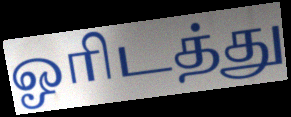
ஓரிடத்து